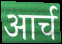
आर्च